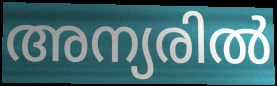
അന്യരിൽ